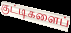
குட்டிகளைப்